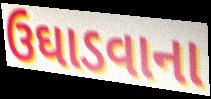
ઉઘાડવાના